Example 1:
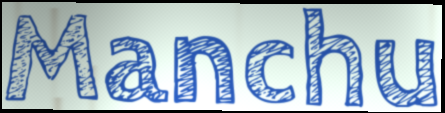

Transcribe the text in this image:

Manchu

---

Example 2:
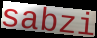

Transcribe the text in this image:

sabzi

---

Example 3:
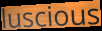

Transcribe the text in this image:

luscious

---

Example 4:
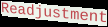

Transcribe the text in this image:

Readjustment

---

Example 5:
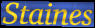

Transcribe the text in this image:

Staines